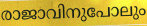
രാജാവിനുപോലും